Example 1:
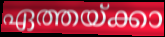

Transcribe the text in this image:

ഏത്തയ്ക്കാ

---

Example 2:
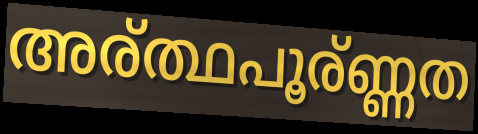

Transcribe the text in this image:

അര്ത്ഥപൂര്ണ്ണത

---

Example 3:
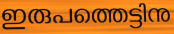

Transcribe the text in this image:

ഇരുപത്തെട്ടിനു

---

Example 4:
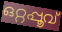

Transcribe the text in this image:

ഒറ്റപ്പൂവ്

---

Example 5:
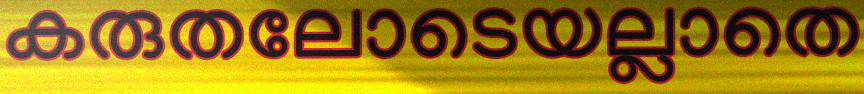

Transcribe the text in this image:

കരുതലോടെയല്ലാതെ